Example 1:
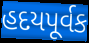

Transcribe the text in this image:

હદયપૂર્વક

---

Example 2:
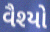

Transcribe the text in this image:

વૈશ્યો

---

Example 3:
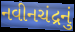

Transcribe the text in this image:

નવીનચંદ્રનું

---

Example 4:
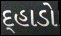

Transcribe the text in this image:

દ્હાડો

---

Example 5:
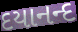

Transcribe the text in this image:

દયાનન્દ